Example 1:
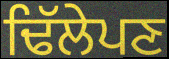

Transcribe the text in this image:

ਢਿੱਲੇਪਣ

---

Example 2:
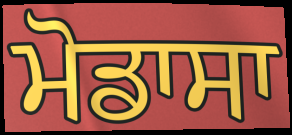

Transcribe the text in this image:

ਮੋਡਾਸਾ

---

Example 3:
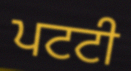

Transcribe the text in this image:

ਪਟਟੀ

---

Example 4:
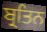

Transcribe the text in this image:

ਬ੍ਰਤਿਨ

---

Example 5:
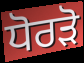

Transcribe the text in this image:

ਧੋਰੜੋ